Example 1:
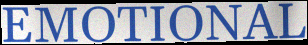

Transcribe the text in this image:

EMOTIONAL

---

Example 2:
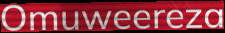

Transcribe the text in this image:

Omuweereza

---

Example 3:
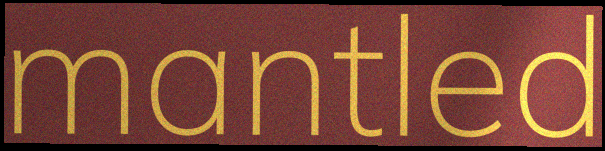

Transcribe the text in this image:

mantled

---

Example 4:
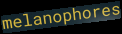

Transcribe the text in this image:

melanophores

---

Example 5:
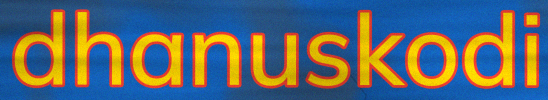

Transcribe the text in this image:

dhanuskodi